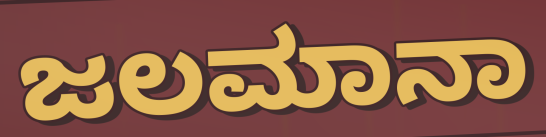
ಜಲಮಾನಾ